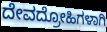
ದೇವದ್ರೋಹಿಗಳಾಗಿ